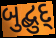
બુદ્બુદ્